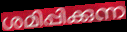
ശമിപ്പിക്കുന്ന